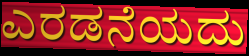
ಎರಡನೆಯದು